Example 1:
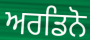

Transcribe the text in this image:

ਅਰਡਿਨੋ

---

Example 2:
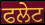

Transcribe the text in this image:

ਫਲੇਟ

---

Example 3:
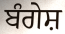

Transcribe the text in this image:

ਬੰਗੇਸ਼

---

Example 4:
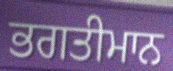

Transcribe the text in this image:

ਭਗਤੀਮਾਨ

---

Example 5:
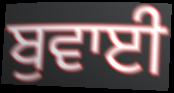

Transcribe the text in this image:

ਬੁਵਾਈ